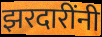
झरदारींनी